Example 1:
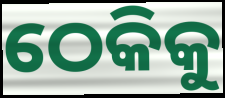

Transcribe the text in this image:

ଠେକିକୁ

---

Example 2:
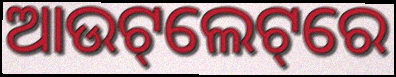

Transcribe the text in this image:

ଆଉଟ୍‌ଲେଟ୍‌ରେ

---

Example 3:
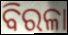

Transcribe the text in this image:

ବିରଳା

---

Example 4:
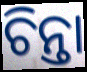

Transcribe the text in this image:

ଚିନ୍ତା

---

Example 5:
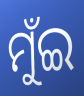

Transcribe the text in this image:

ମୁଁଇ